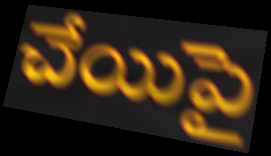
చేయిపై